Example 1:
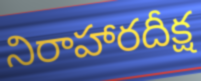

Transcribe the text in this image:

నిరాహారదీక్ష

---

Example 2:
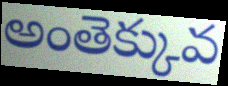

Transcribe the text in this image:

అంతెక్కువ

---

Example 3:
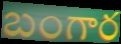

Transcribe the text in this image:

బంగార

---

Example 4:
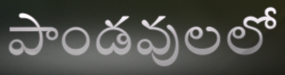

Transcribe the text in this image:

పాండవులలో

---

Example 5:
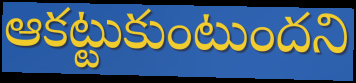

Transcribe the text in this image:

ఆకట్టుకుంటుందని